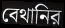
বেথানির